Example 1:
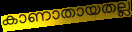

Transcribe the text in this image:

കാണാതായതല്ല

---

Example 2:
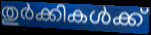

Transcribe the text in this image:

തുർക്കികൾക്ക്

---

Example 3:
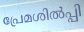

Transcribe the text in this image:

പ്രേമശിൽപ്പി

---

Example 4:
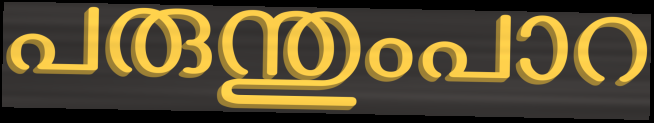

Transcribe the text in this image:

പരുന്തുംപാറ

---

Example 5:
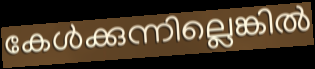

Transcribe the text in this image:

കേൾക്കുന്നില്ലെങ്കിൽ